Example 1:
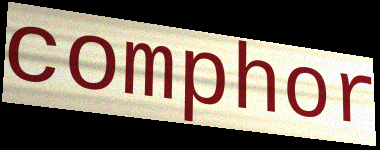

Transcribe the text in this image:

comphor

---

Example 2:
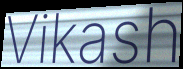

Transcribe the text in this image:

Vikash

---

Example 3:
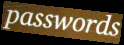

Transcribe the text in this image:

passwords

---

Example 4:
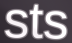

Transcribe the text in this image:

sts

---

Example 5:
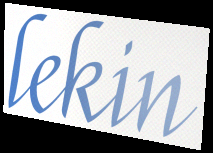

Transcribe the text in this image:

lekin